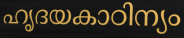
ഹൃദയകാഠിന്യം